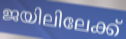
ജയിലിലേക്ക്